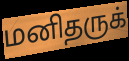
மனிதருக்